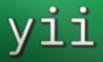
yii